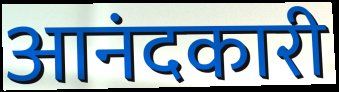
आनंदकारी